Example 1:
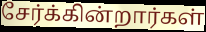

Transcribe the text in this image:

சேர்க்கின்றார்கள்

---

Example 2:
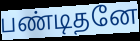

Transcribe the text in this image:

பண்டிதனே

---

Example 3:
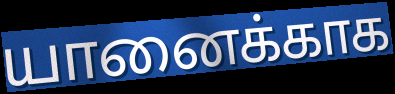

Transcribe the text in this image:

யானைக்காக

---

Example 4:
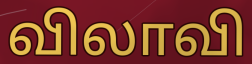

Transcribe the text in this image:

விலாவி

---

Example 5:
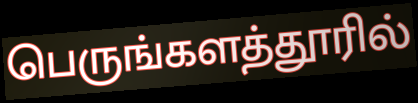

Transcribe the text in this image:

பெருங்களத்தூரில்